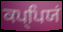
ਕਪ੍ਪਿਯਂ